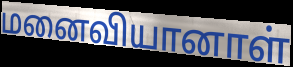
மனைவியானாள்